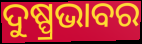
ଦୁଷ୍ପ୍ରଭାବର